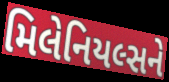
મિલેનિયલ્સને